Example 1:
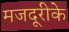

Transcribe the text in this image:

मजदूरीके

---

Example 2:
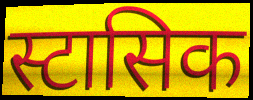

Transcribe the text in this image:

स्टासिक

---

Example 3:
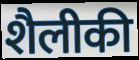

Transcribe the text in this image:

शैलीकी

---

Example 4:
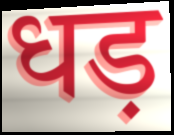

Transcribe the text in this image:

धड़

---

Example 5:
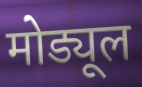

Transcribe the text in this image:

मोड्यूल